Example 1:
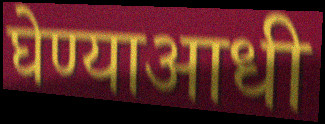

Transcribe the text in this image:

घेण्याआधी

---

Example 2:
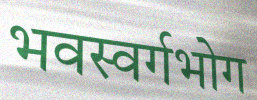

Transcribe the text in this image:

भवस्वर्गभोग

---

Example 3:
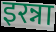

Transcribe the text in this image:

इरन्ना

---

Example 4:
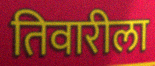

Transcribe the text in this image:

तिवारीला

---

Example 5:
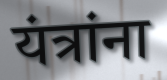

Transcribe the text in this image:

यंत्रांना